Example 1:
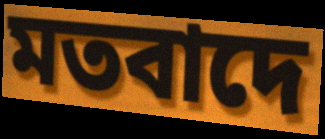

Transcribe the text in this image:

মতবাদে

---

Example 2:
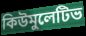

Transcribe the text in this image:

কিউমুলেটিভ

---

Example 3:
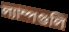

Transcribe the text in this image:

ল্যাম্পগুলি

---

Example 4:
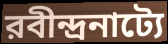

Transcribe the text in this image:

রবীন্দ্রনাট্যে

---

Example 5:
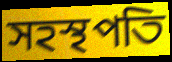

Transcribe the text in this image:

সহস্থপতি